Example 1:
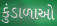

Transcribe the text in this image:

કુંડાળાઓ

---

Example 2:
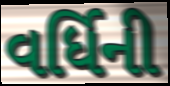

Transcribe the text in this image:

વર્ધિની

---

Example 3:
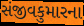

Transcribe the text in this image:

સંજીવકુમારના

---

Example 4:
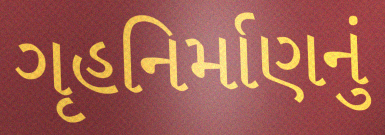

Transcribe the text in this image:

ગૃહનિર્માણનું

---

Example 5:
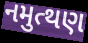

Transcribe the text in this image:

નમુત્થણ